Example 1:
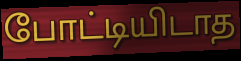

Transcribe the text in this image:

போட்டியிடாத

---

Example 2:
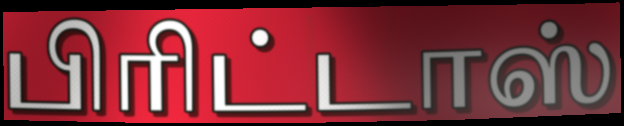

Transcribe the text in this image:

பிரிட்டாஸ்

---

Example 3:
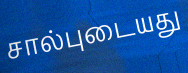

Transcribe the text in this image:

சால்புடையது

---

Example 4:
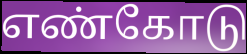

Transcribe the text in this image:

எண்கோடு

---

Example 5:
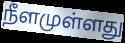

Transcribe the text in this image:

நீளமுள்ளது